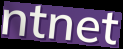
ntnet